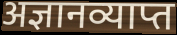
अज्ञानव्याप्त